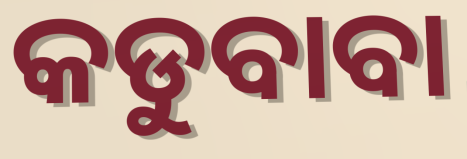
କଡୁବାବା